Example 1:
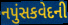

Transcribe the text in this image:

નપુંસકવેદની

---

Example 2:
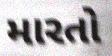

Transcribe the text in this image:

મારતો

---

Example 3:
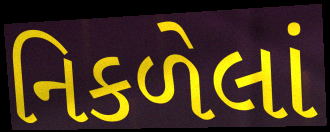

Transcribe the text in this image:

નિકળેલાં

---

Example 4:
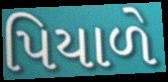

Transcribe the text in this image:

પિયાળે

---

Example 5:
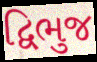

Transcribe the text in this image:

દ્વિભુજ